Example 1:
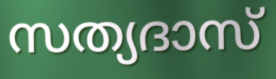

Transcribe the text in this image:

സത്യദാസ്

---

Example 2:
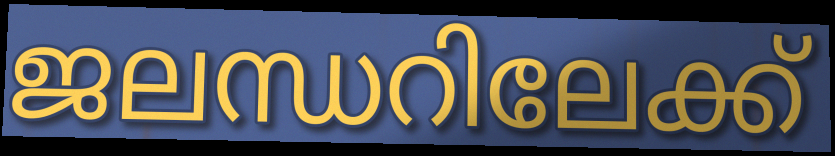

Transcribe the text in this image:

ജലന്ധറിലേക്ക്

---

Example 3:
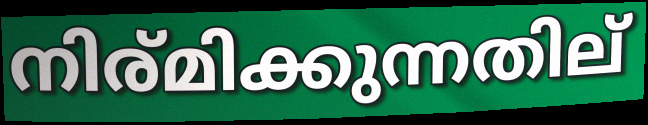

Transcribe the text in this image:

നിര്മിക്കുന്നതില്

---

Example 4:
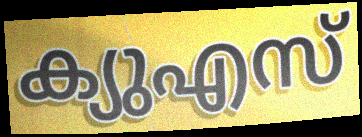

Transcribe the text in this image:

ക്യുഎസ്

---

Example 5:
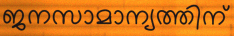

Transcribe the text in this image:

ജനസാമാന്യത്തിന്